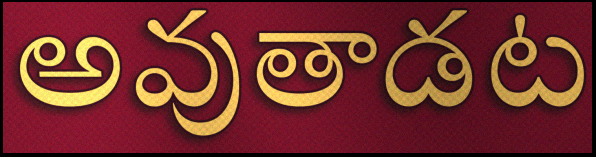
అవుతాడట